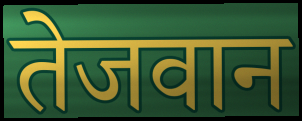
तेजवान